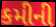
કમીની